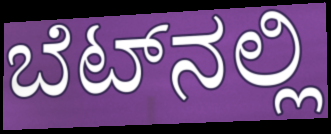
ಬೆಟ್‌ನಲ್ಲಿ